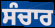
ਸੰਚਾਰ